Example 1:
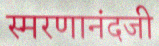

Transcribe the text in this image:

स्मरणानंदजी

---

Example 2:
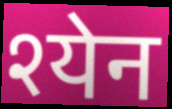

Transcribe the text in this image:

श्येन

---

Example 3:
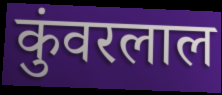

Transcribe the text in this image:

कुंवरलाल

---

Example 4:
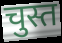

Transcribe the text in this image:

चुस्त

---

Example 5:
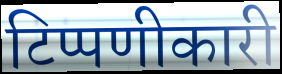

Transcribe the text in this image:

टिप्पणीकारी